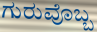
ಗುರುವೊಬ್ಬ